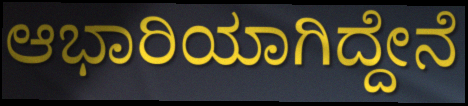
ಆಭಾರಿಯಾಗಿದ್ದೇನೆ